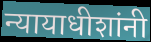
न्यायाधीशांनी